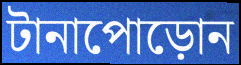
টানাপোড়োন